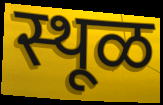
स्थूळ